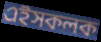
এইসকলক